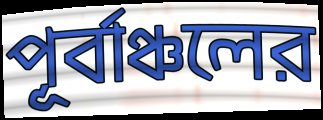
পূর্বাঞ্চলের